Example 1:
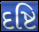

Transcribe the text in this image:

દષ્ટિ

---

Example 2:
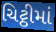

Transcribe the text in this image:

ચિટ્ઠીમાં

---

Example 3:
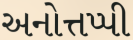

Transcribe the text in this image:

અનોત્તપ્પી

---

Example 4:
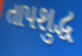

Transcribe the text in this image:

તાપશુદ્ધ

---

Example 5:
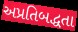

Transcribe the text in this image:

અપ્રતિબદ્ધતા